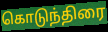
கொடுந்திரை